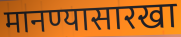
मानण्यासारखा